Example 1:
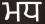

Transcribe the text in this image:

ਮਧ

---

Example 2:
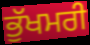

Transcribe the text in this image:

ਭੁੱਖਮਰੀ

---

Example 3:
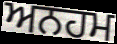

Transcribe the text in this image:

ਅਨਹਮ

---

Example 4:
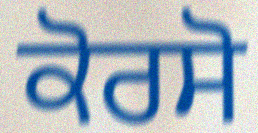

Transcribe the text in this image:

ਕੋਰਸੋ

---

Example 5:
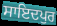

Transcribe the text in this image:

ਸਾਇਦਪੁਰ